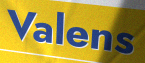
Valens